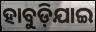
ହାବୁଡ଼ିଯାଇ